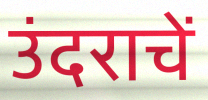
उंदराचें